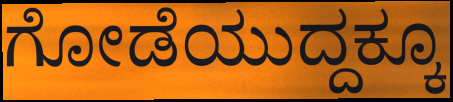
ಗೋಡೆಯುದ್ದಕ್ಕೂ